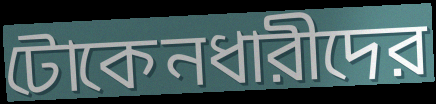
টোকেনধারীদের